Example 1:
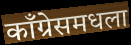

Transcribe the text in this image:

काँग्रेसमधला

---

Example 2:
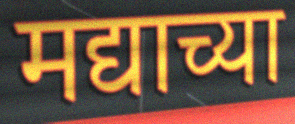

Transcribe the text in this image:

मद्याच्या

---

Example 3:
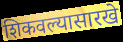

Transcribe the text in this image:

शिकवल्यासारखे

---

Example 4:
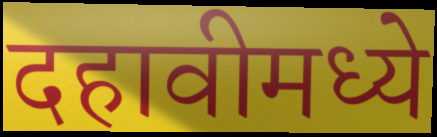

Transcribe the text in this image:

दहावीमध्ये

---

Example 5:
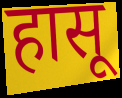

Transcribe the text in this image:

हासू